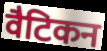
वैटिकन